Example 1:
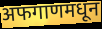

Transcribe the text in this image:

अफगाणमधून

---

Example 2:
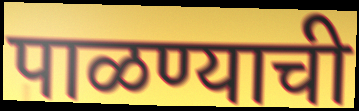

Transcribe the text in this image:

पाळण्याची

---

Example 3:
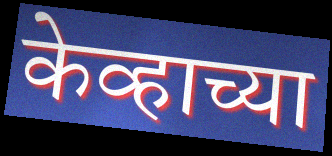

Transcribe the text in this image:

केव्हाच्या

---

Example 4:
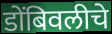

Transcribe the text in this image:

डोंबिवलीचे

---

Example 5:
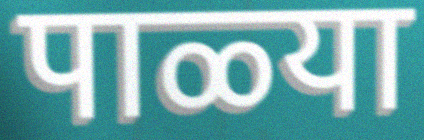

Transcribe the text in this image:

पाळ्या